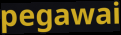
pegawai